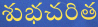
శుభచరిత